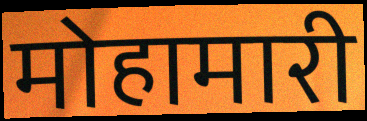
मोहामारी